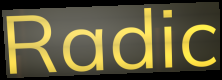
Radic